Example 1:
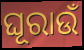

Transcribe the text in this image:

ଘୂରାଉଁ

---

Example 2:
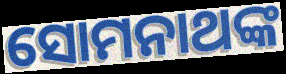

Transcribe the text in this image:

ସୋମନାଥଙ୍କ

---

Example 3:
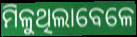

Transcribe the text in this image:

ମିଳୁଥିଲାବେଳେ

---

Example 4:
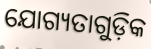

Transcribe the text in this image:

ଯୋଗ୍ୟତାଗୁଡ଼ିକ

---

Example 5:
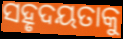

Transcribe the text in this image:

ସହୃଦୟତାକୁ